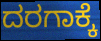
ದರಗಾಕ್ಕೆ